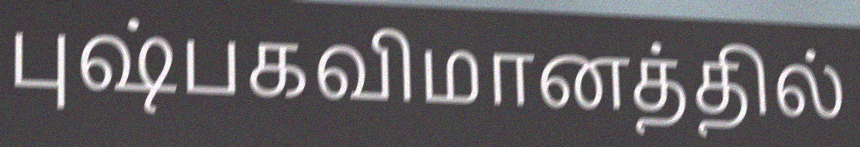
புஷ்பகவிமானத்தில்